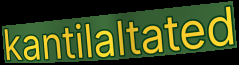
kantilaltated